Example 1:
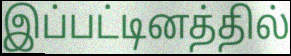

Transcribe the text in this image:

இப்பட்டினத்தில்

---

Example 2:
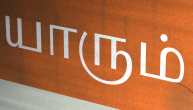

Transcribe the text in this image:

யாரும்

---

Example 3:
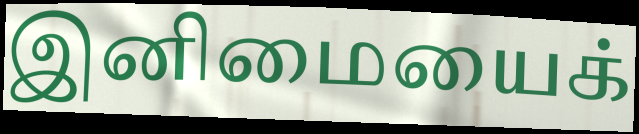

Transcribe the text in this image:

இனிமையைக்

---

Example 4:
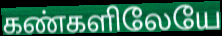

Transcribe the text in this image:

கண்களிலேயே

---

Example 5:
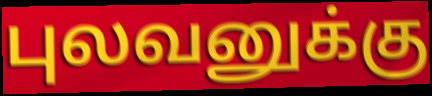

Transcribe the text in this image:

புலவனுக்கு